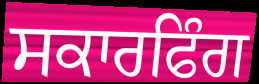
ਸਕਾਰਫਿੰਗ